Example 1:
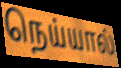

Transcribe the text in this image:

நெய்யால்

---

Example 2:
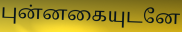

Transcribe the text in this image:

புன்னகையுடனே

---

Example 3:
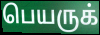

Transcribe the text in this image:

பெயருக்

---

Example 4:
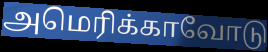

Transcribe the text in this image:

அமெரிக்காவோடு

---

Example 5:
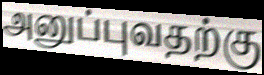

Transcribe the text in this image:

அனுப்புவதற்கு